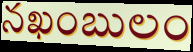
నఖంబులం